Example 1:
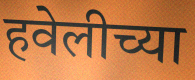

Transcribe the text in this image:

हवेलीच्या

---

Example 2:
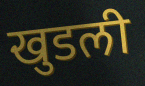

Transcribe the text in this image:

खुडली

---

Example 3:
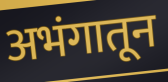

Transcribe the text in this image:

अभंगातून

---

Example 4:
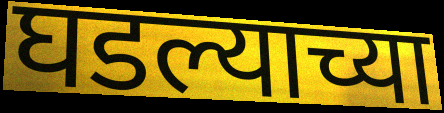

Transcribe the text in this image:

घडल्याच्या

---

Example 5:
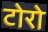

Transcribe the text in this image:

टोरो